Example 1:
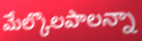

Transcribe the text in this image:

మేల్కొలపాలన్నా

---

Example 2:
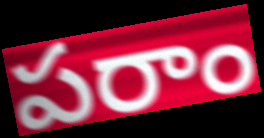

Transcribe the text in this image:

పరాం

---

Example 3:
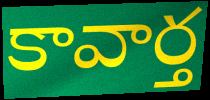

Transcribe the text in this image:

కావార్త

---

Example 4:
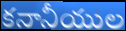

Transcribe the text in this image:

కనానీయుల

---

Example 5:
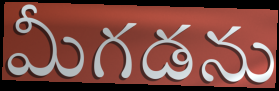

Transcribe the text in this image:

మీగడను